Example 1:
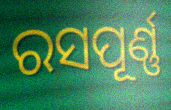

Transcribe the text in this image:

ରସପୂର୍ଣ୍ଣ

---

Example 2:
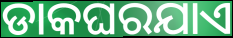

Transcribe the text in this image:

ଡାକଘରଯାଏ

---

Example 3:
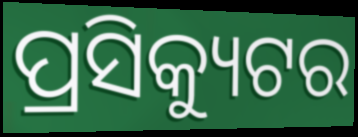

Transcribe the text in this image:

ପ୍ରସିକ୍ୟୁଟର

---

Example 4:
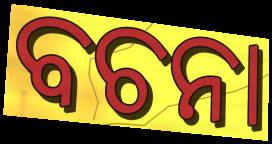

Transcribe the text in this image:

ବଚନା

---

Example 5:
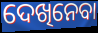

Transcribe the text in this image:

ଦେଖିନେବା